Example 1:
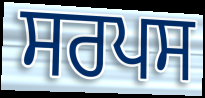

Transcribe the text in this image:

ਸਰਪਸ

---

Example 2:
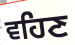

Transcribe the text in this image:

ਵਹਿਣ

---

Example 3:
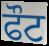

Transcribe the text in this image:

ਫੌਟ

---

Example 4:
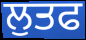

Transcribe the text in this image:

ਲੁਤਫ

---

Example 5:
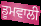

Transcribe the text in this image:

ਡੂਮਵਾਲੀ